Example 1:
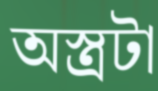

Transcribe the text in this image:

অস্ত্রটা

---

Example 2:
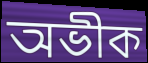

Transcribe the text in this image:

অভীক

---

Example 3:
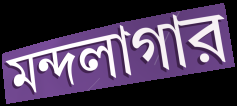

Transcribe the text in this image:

মন্দলাগার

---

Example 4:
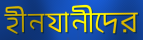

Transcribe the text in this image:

হীনযানীদের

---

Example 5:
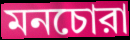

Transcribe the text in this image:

মনচোরা